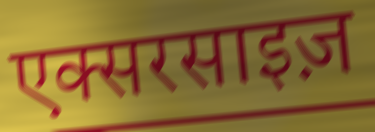
एक्सरसाइज़